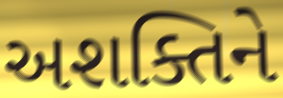
અશક્તિને